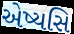
એષ્યસિ